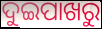
ଦୁଇପାଖରୁ